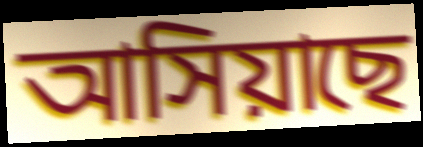
আসিয়াছে